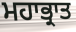
ਮਹਾਭ੍ਰਾਤ